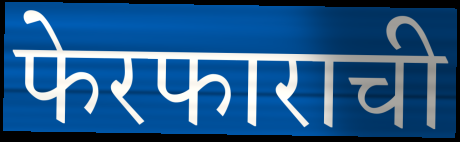
फेरफाराची